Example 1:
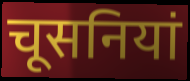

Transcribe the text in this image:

चूसनियां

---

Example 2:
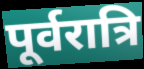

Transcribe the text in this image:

पूर्वरात्रि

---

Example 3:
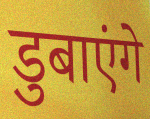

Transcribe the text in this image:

डुबाएंगे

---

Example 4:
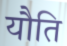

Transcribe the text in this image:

यौति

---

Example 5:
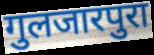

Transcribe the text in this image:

गुलजारपुरा